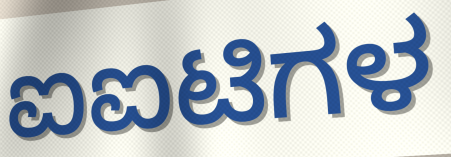
ಐಐಟಿಗಳ